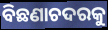
ବିଛଣାଚଦରକୁ